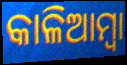
କାଳିଆମ୍ବା